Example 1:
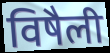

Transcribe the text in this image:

विषैली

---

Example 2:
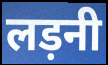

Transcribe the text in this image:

लड़नी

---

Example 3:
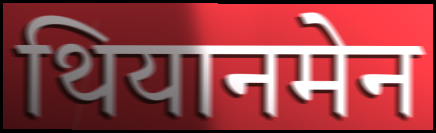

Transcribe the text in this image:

थियानमेन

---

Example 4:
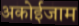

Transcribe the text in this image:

अकोईजाम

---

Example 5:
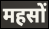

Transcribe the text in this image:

महसों